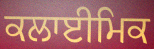
ਕਲਾਈਮਿਕ